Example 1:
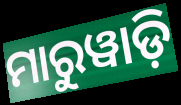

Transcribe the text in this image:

ମାରୁୱାଡ଼ି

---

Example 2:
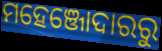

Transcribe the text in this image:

ମହେଞ୍ଜୋଦାରରୁ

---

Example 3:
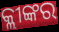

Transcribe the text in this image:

କ୍ଲୀଙ୍କର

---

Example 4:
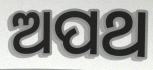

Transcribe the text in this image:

ଅପଥ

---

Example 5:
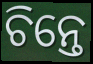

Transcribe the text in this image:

ଚିନ୍ତେ